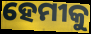
ହେମୀକୁ